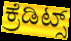
ಕ್ರೆಡಿಟ್ಸ್